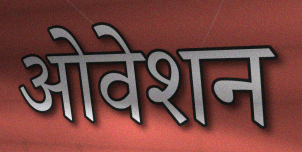
ओवेशन